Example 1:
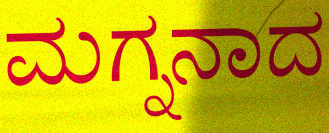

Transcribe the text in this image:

ಮಗ್ನನಾದ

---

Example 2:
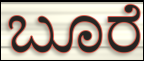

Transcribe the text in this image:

ಬೂರೆ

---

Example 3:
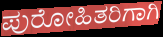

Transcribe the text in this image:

ಪುರೋಹಿತರಿಗಾಗಿ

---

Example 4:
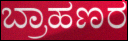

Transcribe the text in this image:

ಬ್ರಾಹಣರ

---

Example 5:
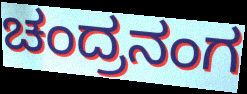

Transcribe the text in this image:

ಚಂದ್ರನಂಗ